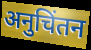
अनुचिंतन